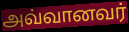
அவ்வானவர்